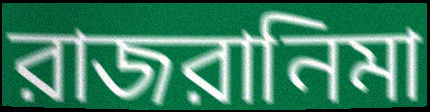
রাজরানিমা